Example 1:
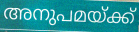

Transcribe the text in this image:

അനുപമയ്ക്ക്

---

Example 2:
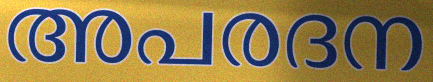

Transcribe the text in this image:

അപരദന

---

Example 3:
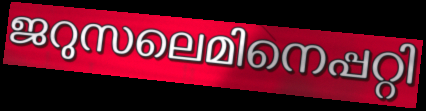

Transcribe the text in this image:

ജറുസലെമിനെപ്പറ്റി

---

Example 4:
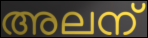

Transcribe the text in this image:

അലന്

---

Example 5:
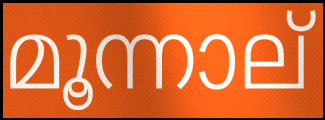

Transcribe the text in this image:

മൂന്നാല്